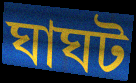
ঘাঘট